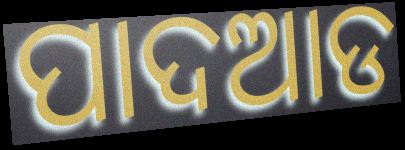
ପାଦଆଡ